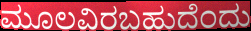
ಮೂಲವಿರಬಹುದೆಂದು